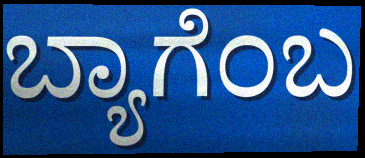
ಬ್ಯಾಗೆಂಬ